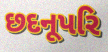
છદનૂપરિ